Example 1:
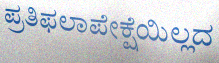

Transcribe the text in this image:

ಪ್ರತಿಫಲಾಪೇಕ್ಷೆಯಿಲ್ಲದ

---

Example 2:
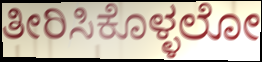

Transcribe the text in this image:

ತೀರಿಸಿಕೊಳ್ಳಲೋ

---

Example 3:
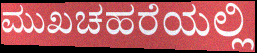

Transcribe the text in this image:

ಮುಖಚಹರೆಯಲ್ಲಿ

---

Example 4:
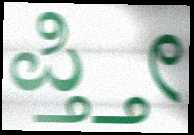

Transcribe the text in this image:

ಪ್ತ್ತೀ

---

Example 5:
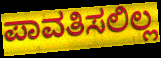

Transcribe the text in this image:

ಪಾವತಿಸಲಿಲ್ಲ